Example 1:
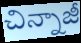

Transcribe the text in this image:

చిన్నాజీ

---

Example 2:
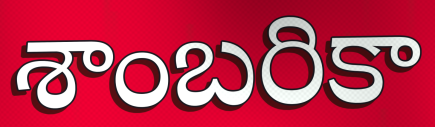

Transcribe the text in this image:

శాంబరికా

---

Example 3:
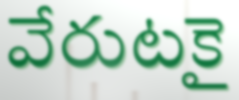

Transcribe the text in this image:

వేరుటకై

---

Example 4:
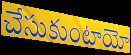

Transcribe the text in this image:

చేసుకుంటాయో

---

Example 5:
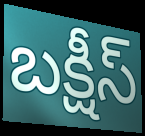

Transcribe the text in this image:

బక్షీస్